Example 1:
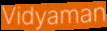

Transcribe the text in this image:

Vidyaman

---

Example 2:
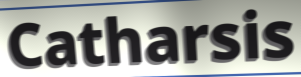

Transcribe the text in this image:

Catharsis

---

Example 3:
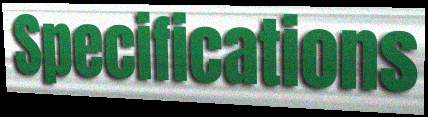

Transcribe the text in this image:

Specifications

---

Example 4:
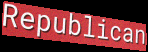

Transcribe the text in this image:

Republican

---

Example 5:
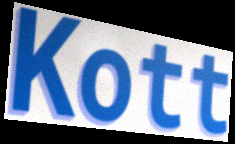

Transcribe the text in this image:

Kott